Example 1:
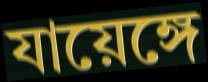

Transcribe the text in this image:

যায়েঙ্গে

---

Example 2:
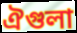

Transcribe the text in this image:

ঐগুলা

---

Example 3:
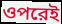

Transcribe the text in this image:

ওপরেই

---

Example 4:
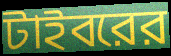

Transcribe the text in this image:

টাইবরের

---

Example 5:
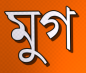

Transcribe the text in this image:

মুগ